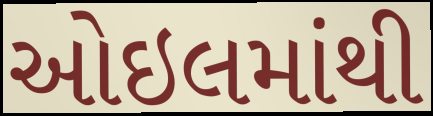
ઓઇલમાંથી